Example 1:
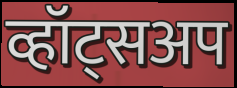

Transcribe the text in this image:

व्हॉट्सअप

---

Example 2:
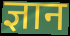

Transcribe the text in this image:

ज्ञान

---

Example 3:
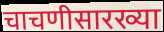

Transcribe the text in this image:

चाचणीसारख्या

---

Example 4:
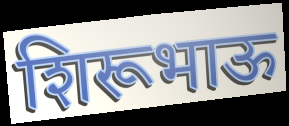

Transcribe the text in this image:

शिरूभाऊ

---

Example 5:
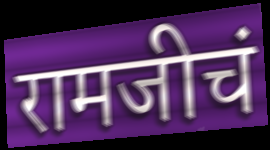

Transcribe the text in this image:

रामजीचं